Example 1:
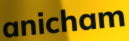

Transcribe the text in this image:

anicham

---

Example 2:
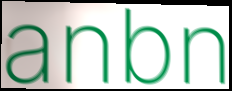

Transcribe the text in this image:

anbn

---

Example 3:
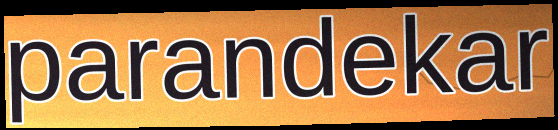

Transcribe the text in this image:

parandekar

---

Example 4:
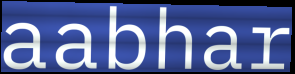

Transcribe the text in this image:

aabhar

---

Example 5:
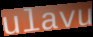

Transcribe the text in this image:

ulavu